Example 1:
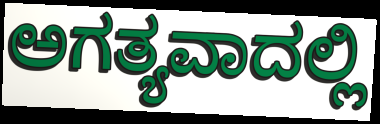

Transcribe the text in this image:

ಅಗತ್ಯವಾದಲ್ಲಿ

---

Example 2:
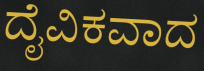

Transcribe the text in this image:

ದೈವಿಕವಾದ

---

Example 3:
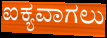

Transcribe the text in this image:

ಐಕ್ಯವಾಗಲು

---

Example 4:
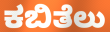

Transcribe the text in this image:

ಕಬಿತೆಲು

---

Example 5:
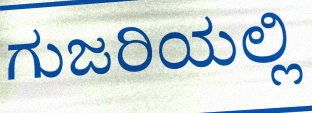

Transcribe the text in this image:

ಗುಜರಿಯಲ್ಲಿ